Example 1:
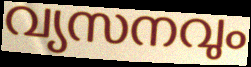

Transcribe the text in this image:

വ്യസനവും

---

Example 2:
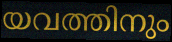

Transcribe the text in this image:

യവത്തിനും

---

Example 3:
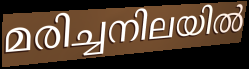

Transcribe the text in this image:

മരിച്ചനിലയിൽ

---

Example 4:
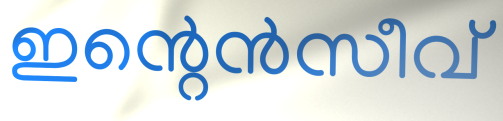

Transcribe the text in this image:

ഇന്റെൻസീവ്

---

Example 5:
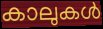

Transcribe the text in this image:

കാലുകൾ